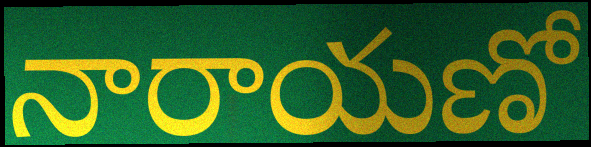
నారాయణో